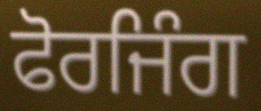
ਫੋਰਜਿੰਗ